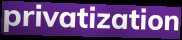
privatization